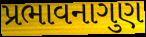
પ્રભાવનાગુણ